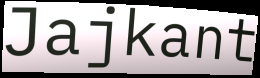
Jajkant